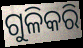
ଗୁଳିକରି